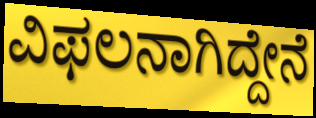
ವಿಫಲನಾಗಿದ್ದೇನೆ